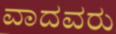
ವಾದವರು